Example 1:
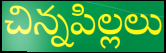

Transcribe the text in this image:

చిన్నపిల్లలు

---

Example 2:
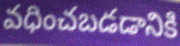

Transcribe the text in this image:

వధించబడడానికి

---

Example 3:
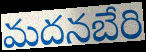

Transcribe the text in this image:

మదనబేరి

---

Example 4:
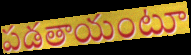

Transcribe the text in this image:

పడతాయంటూ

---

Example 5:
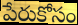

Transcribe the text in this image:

పేరుకోసం